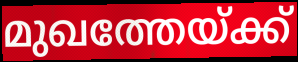
മുഖത്തേയ്ക്ക്